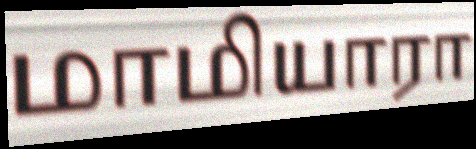
மாமியாரா